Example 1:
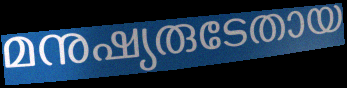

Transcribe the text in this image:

മനുഷ്യരുടേതായ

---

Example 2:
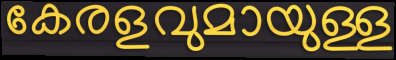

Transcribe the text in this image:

കേരളവുമായുള്ള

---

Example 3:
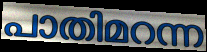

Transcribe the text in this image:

പാതിമറന്ന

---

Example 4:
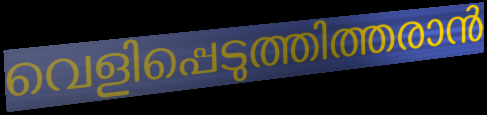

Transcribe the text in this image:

വെളിപ്പെടുത്തിത്തരാൻ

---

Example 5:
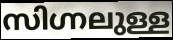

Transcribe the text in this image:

സിഗ്നലുള്ള